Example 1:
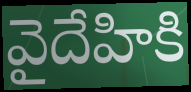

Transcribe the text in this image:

వైదేహికి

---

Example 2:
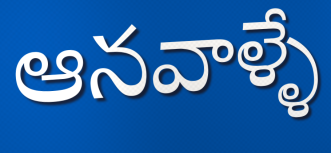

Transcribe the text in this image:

ఆనవాళ్ళే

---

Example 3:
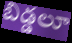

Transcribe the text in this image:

బిడ్డలూ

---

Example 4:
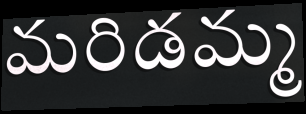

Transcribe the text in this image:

మరిడమ్మ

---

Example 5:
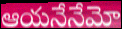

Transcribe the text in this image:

ఆయనేనేమో